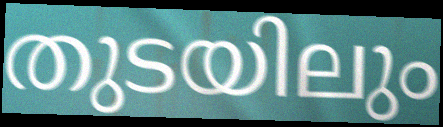
തുടയിലും